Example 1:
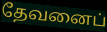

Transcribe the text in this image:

தேவனைப்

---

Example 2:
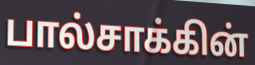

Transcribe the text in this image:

பால்சாக்கின்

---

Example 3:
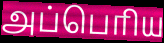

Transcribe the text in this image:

அப்பெரிய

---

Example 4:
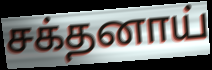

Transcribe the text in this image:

சக்தனாய்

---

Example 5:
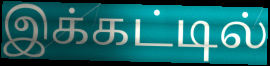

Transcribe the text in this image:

இக்கட்டில்